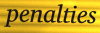
penalties